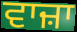
ਵਾਜ਼ਾ